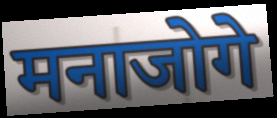
मनाजोगे